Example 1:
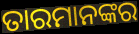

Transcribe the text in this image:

ତାରମାନଙ୍କର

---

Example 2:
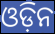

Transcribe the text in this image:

ଓଡ଼ିନ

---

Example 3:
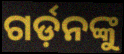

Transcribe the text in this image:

ଗର୍ଡ଼ନଙ୍କୁ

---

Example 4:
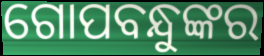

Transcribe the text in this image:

ଗୋପବନ୍ଧୁଙ୍କର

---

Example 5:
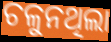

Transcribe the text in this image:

ଚଳୁନଥିଲା